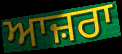
ਆਜ਼ਰਾ